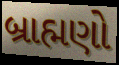
બ્રાહ્મણો